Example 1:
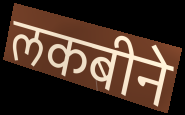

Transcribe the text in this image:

लकबीने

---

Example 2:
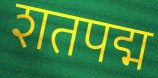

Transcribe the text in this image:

शतपद्म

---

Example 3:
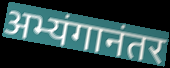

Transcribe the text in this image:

अभ्यंगानंतर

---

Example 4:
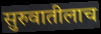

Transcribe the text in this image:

सुरुवातीलाच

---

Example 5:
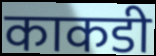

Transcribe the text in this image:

काकडी